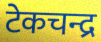
टेकचन्द्र